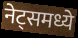
नेट्समध्ये